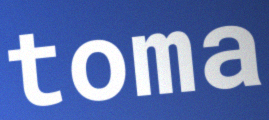
toma